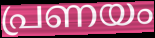
പ്രണയം